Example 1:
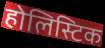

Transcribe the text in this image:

होलिस्टिक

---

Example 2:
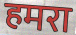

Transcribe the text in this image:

हमरा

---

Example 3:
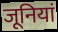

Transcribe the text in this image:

जूनियां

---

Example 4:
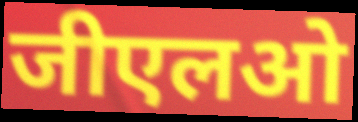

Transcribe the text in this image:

जीएलओ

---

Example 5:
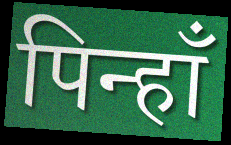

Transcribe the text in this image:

पिन्हाँ